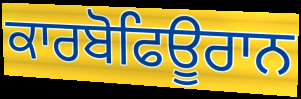
ਕਾਰਬੋਫਿਊਰਾਨ